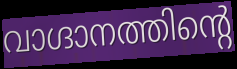
വാഗ്ദാനത്തിന്റെ